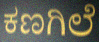
ಕಣಗಿಲೆ